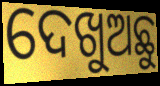
ଦେଖୁଅଛୁ